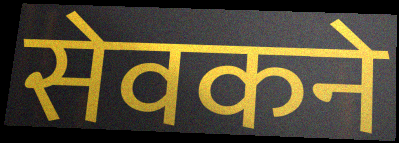
सेवकने